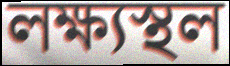
লক্ষ্যস্থল